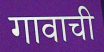
गावाची